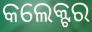
କଲେକ୍ଟର